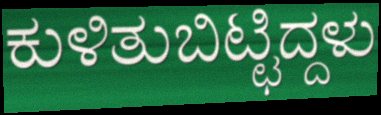
ಕುಳಿತುಬಿಟ್ಟಿದ್ದಳು